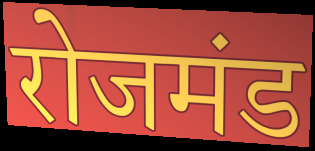
रोजमंड